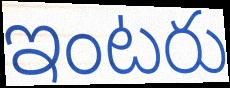
ఇంటరు